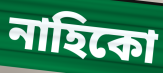
নাহিকো